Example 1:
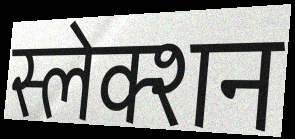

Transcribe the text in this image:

स्लेक्शन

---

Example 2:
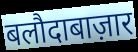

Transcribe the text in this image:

बलौदाबाज़ार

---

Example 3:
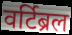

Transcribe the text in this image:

वर्टिब्रल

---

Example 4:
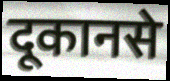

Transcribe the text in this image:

दूकानसे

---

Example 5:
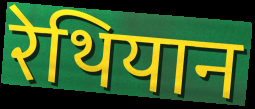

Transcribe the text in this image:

रेथियान